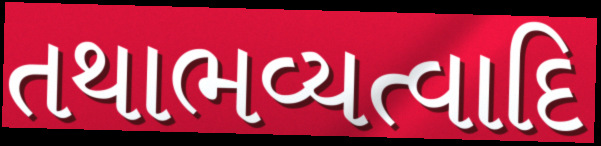
તથાભવ્યત્વાદિ